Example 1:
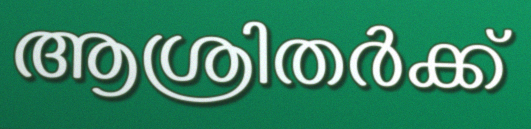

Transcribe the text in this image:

ആശ്രിതർക്ക്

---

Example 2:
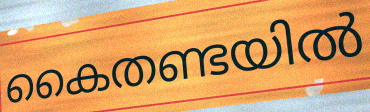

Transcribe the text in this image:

കൈതണ്ടയിൽ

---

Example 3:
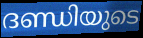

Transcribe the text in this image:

ദണ്ഡിയുടെ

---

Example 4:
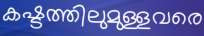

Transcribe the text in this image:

കഷ്ടത്തിലുമുള്ളവരെ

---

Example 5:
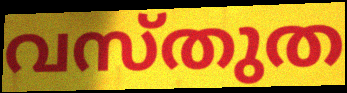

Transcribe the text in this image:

വസ്തുത